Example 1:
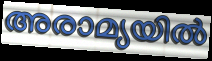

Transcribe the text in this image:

അരാമ്യയിൽ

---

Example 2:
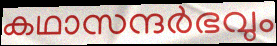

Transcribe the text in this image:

കഥാസന്ദർഭവും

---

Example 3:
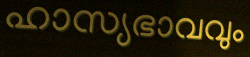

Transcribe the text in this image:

ഹാസ്യഭാവവും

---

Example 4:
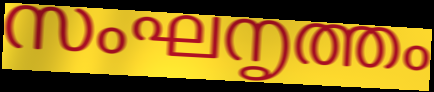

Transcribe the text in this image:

സംഘനൃത്തം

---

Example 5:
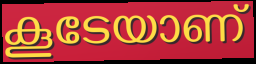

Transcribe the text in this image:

കൂടേയാണ്